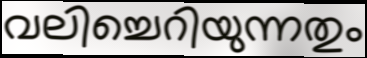
വലിച്ചെറിയുന്നതും